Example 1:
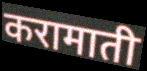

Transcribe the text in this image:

करामाती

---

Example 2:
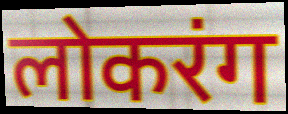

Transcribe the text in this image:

लोकरंग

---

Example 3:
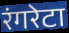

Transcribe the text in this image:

रंगरेटा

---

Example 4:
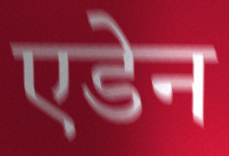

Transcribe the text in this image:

एडेन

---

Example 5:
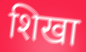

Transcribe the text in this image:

शिखा